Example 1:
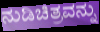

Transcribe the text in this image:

ನುಡಿಚಿತ್ರವನ್ನು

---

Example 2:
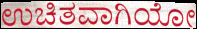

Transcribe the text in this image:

ಉಚಿತವಾಗಿಯೋ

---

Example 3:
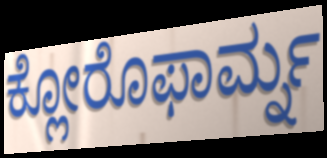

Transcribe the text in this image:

ಕ್ಲೋರೊಫಾರ್ಮ್ನ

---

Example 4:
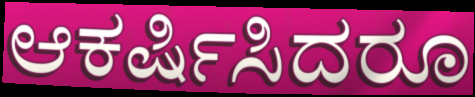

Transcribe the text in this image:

ಆಕರ್ಷಿಸಿದರೂ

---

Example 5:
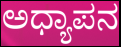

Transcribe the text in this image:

ಅಧ್ಯಾಪನ